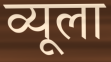
व्यूला